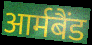
आर्मबैंड